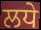
ਲਧੇ